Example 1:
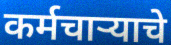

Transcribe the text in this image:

कर्मचाऱ्याचे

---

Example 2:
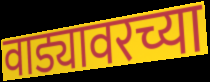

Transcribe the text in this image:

वाड्यावरच्या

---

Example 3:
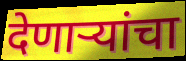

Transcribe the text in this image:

देणाऱ्यांचा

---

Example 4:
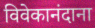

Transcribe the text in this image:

विवेकानंदाना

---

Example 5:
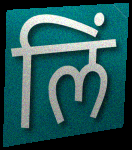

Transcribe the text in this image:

लिं